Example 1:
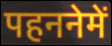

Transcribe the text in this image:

पहननेमें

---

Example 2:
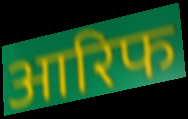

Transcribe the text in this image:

आरिफ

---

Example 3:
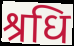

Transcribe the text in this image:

श्रधि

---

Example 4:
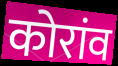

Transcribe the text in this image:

कोरांव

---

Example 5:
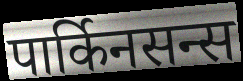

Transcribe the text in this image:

पार्किनसन्स